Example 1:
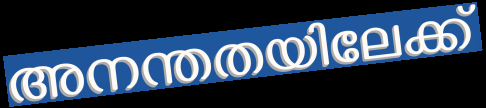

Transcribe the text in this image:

അനന്തതയിലേക്ക്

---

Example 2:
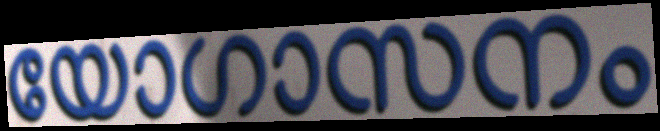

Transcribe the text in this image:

യോഗാസനം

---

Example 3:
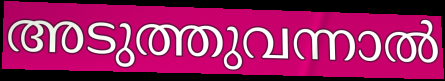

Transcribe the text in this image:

അടുത്തുവന്നാൽ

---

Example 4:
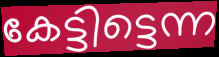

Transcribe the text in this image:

കേട്ടിട്ടെന്ന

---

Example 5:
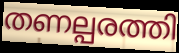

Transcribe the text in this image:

തണല്പരത്തി